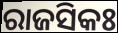
ରାଜସିକଃ